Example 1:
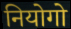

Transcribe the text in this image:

नियोगो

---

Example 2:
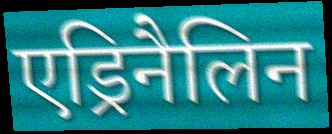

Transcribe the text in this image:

एड्रिनैलिन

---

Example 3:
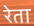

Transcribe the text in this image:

रेता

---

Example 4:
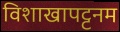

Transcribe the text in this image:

विशाखापट्टनम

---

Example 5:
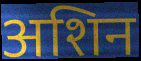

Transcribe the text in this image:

अशिन